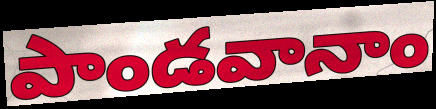
పాండవానాం